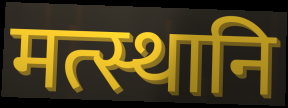
मत्स्थानि